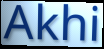
Akhi